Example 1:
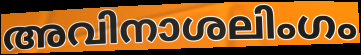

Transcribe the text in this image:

അവിനാശലിംഗം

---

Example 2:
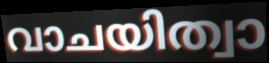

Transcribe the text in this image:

വാചയിത്വാ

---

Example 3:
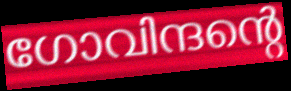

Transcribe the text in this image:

ഗോവിന്ദന്റെ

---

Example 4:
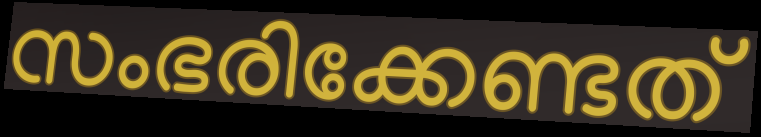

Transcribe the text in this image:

സംഭരിക്കേണ്ടത്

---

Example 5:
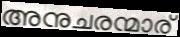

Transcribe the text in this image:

അനുചരന്മാര്